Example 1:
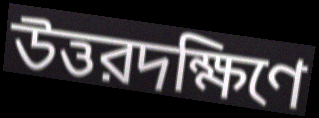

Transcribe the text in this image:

উত্তরদক্ষিণে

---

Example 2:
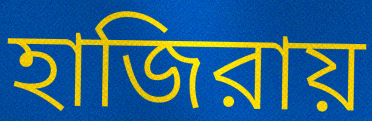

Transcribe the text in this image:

হাজিরায়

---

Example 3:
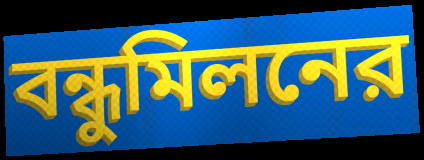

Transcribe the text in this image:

বন্ধুমিলনের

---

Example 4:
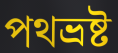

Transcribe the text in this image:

পথভ্রষ্ট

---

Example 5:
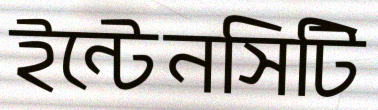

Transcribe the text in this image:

ইন্টেনসিটি